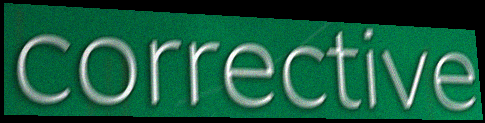
corrective